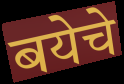
बयेचे